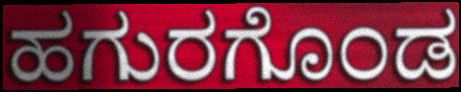
ಹಗುರಗೊಂಡ